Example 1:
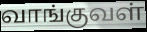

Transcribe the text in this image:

வாங்குவள்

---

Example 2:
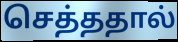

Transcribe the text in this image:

செத்ததால்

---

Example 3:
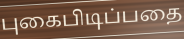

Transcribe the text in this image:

புகைபிடிப்பதை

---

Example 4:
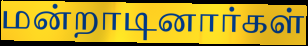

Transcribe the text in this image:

மன்றாடினார்கள்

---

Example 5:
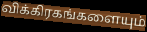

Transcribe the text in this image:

விக்கிரகங்களையும்